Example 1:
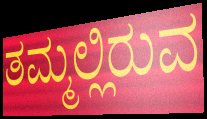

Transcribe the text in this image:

ತಮ್ಮಲ್ಲಿರುವ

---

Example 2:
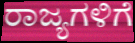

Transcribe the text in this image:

ರಾಜ್ಯಗಳಿಗೆ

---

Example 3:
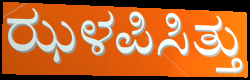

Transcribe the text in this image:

ಝಳಪಿಸಿತ್ತು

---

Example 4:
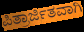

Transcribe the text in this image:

ಪಿತ್ರಾರ್ಜಿತವಾಗಿ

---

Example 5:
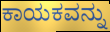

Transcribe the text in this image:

ಕಾಯಕವನ್ನು